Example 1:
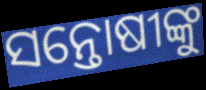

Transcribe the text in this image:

ସନ୍ତୋଷୀଙ୍କୁ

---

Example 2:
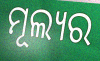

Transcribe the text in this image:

ମୂଲ୍ଯର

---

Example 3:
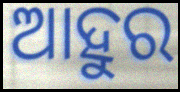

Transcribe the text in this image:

ଆହୁର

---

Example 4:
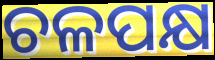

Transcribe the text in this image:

ଚଳପକ୍ଷ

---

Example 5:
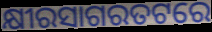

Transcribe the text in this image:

କ୍ଷୀରସାଗରତଟରେ